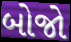
બોજો